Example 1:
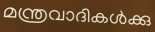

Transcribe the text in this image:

മന്ത്രവാദികൾക്കു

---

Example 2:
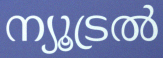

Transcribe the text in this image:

ന്യൂട്രൽ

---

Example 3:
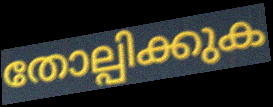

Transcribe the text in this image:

തോല്പിക്കുക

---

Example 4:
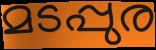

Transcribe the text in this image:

മടപ്പുര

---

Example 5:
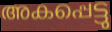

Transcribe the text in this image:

അകപ്പെട്ടു